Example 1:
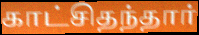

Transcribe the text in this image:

காட்சிதந்தார்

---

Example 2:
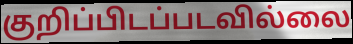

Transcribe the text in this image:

குறிப்பிடப்படவில்லை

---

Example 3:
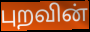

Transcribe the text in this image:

புறவின்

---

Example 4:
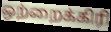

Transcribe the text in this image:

ஒற்றைக்கிரி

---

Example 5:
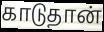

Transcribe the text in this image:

காடுதான்